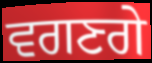
ਵਗਣਗੇ